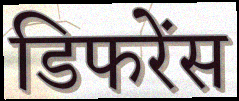
डिफरेंस